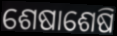
ଶେଷାଶେଷି